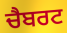
ਚੈਬਰਟ